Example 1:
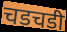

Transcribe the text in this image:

चडचडी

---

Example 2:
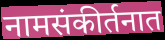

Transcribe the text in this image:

नामसंकीर्तनात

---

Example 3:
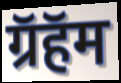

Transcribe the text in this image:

ग्रॅहॅम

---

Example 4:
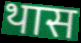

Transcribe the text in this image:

थास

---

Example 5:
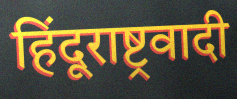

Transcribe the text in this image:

हिंदूराष्ट्रवादी